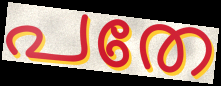
പതേ